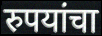
रुपयांचा